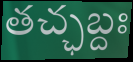
తచ్ఛబ్దః